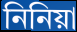
নিনিয়া